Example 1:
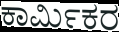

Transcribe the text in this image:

ಕಾರ್ಮಿಕರ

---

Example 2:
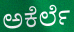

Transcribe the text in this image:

ಅಕೆರ್ಲೆ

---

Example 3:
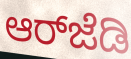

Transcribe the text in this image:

ಆರ್‌ಜೆಡಿ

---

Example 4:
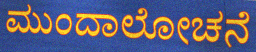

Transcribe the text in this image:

ಮುಂದಾಲೋಚನೆ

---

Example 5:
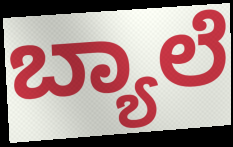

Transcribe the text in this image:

ಬ್ಯಾಲೆ